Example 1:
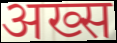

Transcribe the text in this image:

अख्स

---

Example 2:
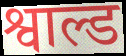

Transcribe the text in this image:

श्वाल्ड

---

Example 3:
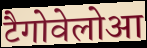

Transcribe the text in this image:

टैगोवेलोआ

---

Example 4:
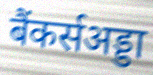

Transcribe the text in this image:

बैंकर्सअड्डा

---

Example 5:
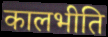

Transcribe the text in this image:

कालभीति